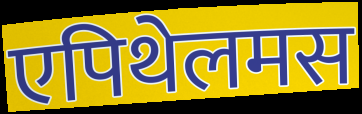
एपिथेलमस